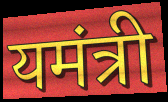
यमंत्री